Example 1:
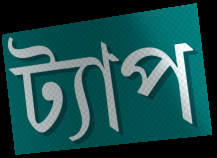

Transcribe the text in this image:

ট্যাপ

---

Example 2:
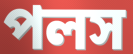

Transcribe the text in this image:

পলস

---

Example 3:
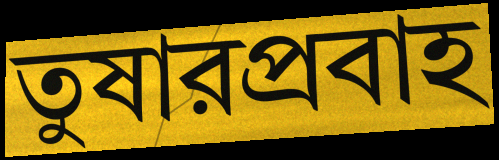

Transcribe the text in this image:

তুষারপ্রবাহ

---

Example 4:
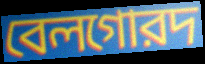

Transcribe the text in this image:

বেলগোরদ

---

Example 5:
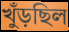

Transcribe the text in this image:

খুঁড়ছিল